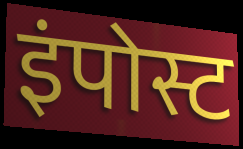
इंपोस्ट